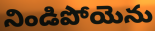
నిండిపోయెను